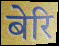
बेरि